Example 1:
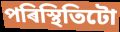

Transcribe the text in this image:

পৰিস্থিতিটো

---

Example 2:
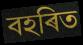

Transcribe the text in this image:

বহৰিত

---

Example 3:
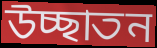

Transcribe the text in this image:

উচ্ছাতন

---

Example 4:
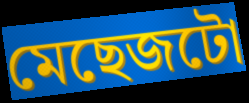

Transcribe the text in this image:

মেছেজটো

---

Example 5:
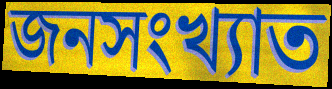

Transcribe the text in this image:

জনসংখ্যাত